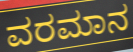
ವರಮಾನ